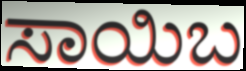
ಸಾಯಿಬ